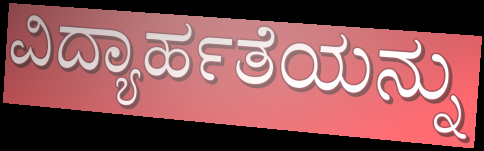
ವಿದ್ಯಾರ್ಹತೆಯನ್ನು